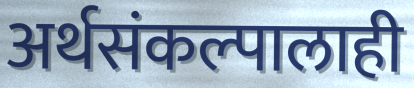
अर्थसंकल्पालाही